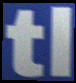
tl